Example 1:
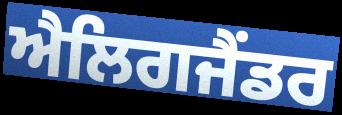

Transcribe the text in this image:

ਐਲਿਗਜੈਂਡਰ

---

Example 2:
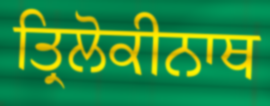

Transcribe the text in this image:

ਤ੍ਰਿਲੋਕੀਨਾਥ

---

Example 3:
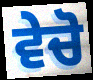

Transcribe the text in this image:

ਵੇਚੋ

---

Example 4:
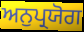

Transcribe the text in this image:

ਅਨੁਪ੍ਰਯੋਗ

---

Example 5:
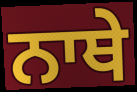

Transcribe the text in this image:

ਨਾਥੇ